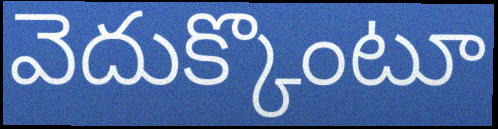
వెదుక్కొంటూ